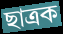
ছাত্ৰক